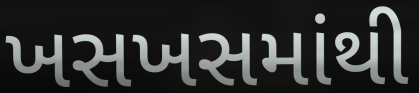
ખસખસમાંથી